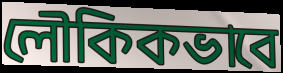
লৌকিকভাবে